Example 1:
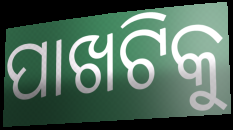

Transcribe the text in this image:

ପାଖଟିକୁ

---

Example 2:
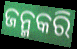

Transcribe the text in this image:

ଜନ୍ମକରି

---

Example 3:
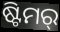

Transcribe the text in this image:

ଷ୍ଟିମର୍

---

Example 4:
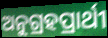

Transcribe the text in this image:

ଅନୁଗ୍ରହପ୍ରାର୍ଥୀ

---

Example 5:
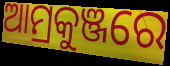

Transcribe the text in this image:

ଆମ୍ରକୁଞ୍ଜରେ